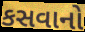
કસવાનો